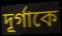
দূর্গাকে